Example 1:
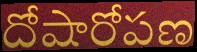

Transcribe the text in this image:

దోషారోపణ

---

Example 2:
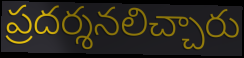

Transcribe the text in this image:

ప్రదర్శనలిచ్చారు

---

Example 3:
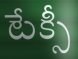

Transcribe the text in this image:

టేక్సీ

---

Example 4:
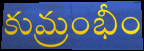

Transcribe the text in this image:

కుమ్రంభీం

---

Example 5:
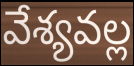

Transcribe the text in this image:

వేశ్యవల్ల